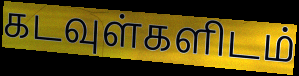
கடவுள்களிடம்